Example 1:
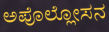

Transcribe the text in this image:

ಅಪೊಲ್ಲೋಸನ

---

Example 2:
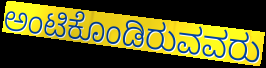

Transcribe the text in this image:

ಅಂಟಿಕೊಂಡಿರುವವರು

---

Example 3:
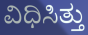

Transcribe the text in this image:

ವಿಧಿಸಿತ್ತು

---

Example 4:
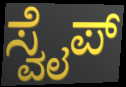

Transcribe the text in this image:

ಸ್ವೈಪ್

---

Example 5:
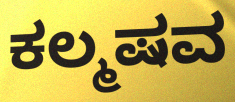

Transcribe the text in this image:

ಕಲ್ಮಷವ